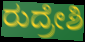
ರುದ್ರೇಶಿ